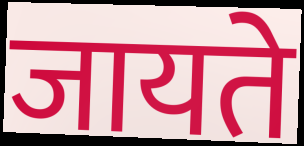
जायते